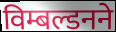
विम्बल्डनने